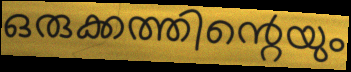
ഒരുക്കത്തിന്റെയും